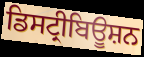
ਡਿਸਟ੍ਰੀਬਿਊਸ਼ਨ